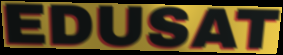
EDUSAT